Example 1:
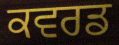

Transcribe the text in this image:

ਕਵਰਡ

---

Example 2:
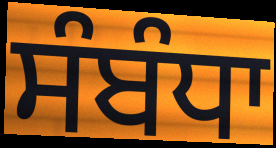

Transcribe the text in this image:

ਸੰਬੰਧਾ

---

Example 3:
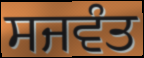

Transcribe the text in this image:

ਸਜਵੰਤ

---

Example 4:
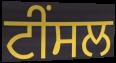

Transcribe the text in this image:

ਟੀਂਸਲ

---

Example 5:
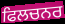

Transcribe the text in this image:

ਫਿਲਚਨਰ